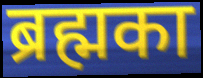
ब्रह्मका